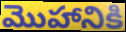
మొహానికి